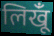
लिखूंँ